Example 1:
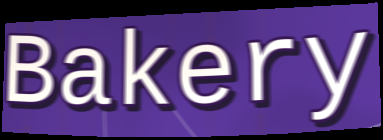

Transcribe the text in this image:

Bakery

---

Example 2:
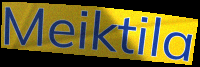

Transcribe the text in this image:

Meiktila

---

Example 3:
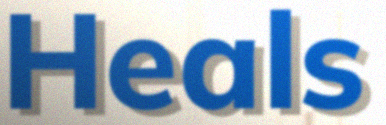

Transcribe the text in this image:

Heals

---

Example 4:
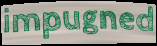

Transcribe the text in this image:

impugned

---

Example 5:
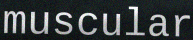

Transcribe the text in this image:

muscular